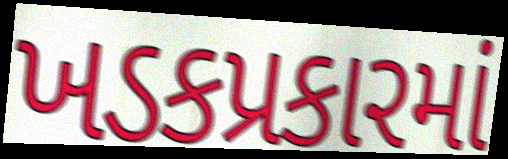
ખડકપ્રકારમાં